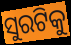
ସୁରଟିକୁ